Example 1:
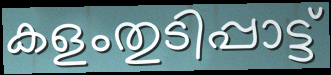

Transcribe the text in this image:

കളംതുടിപ്പാട്ട്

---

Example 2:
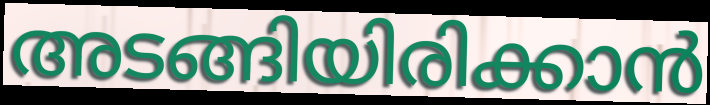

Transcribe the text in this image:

അടങ്ങിയിരിക്കാൻ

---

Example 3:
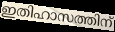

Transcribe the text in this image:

ഇതിഹാസത്തിന്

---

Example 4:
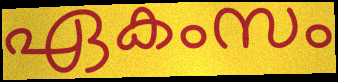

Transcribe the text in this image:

ഏകംസം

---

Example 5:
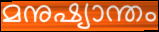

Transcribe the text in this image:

മനുഷ്യാന്തം